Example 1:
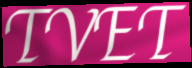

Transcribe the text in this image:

TVET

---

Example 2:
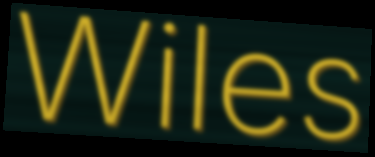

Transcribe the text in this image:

Wiles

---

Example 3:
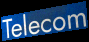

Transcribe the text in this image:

Telecom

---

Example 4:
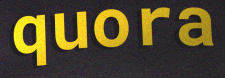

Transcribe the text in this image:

quora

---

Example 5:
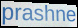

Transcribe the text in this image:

prashne